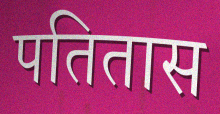
पतितास